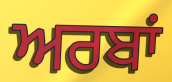
ਅਰਬਾਂ